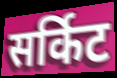
सर्किट